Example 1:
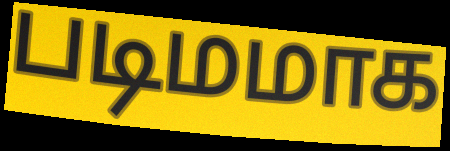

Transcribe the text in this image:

படிமமாக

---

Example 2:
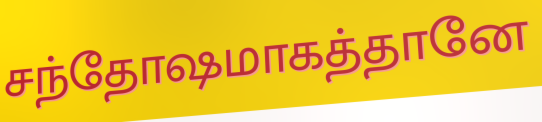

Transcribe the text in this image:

சந்தோஷமாகத்தானே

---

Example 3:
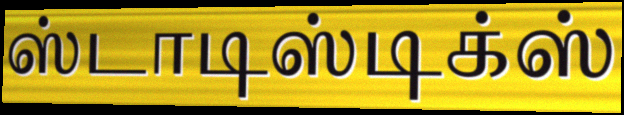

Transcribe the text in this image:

ஸ்டாடிஸ்டிக்ஸ்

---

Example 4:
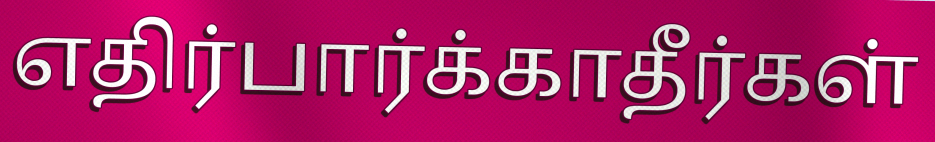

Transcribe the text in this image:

எதிர்பார்க்காதீர்கள்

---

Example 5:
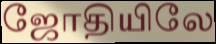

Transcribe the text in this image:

ஜோதியிலே